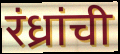
रंध्रांची